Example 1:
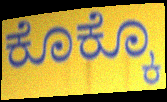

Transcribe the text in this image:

ಕೊಕ್ಕೊ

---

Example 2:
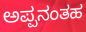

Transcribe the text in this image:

ಅಪ್ಪನಂತಹ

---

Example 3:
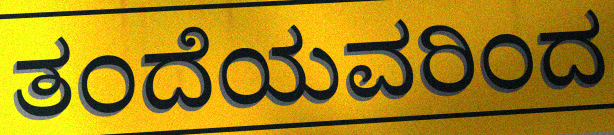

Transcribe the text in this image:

ತಂದೆಯವರಿಂದ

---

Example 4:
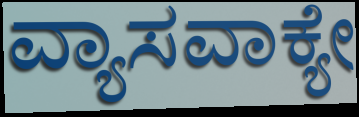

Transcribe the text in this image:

ವ್ಯಾಸವಾಕ್ಯೇ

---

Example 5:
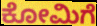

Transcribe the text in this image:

ಕೋಮಿಗೆ